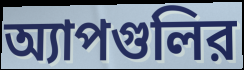
অ্যাপগুলির